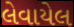
લેવાયેલ